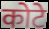
कोटे